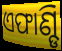
ଏଫାଣ୍ଡି